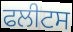
ਫਲੀਟਸ